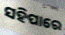
ସହିପାରେ